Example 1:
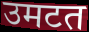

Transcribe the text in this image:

उमटत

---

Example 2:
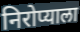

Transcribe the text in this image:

निरोप्याला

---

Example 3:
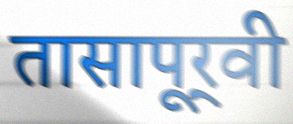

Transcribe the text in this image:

तासापूर्वी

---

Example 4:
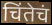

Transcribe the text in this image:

चिंतेचं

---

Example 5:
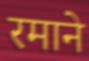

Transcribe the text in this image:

रमाने